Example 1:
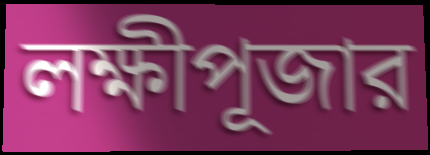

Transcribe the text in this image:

লক্ষীপূজার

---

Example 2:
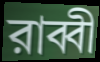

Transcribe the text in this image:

রাব্বী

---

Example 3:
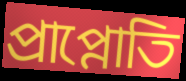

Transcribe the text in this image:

প্রাপ্নোতি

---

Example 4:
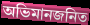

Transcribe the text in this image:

অভিমানজনিত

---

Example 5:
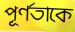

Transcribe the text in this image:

পূর্ণতাকে